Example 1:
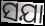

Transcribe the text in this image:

ସଯା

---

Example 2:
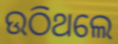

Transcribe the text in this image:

ଉଠିଥଲେ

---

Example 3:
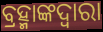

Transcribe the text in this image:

ବ୍ରହ୍ମାଙ୍କଦ୍ୱାରା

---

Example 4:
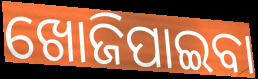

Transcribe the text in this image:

ଖୋଜିପାଇବା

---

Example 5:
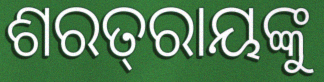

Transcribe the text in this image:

ଶରତ୍‌ରାୟଙ୍କୁ